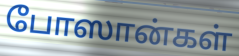
போஸான்கள்